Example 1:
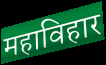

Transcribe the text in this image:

महाविहार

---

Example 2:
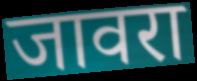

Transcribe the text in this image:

जावरा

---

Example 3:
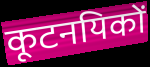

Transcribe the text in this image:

कूटनयिकों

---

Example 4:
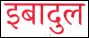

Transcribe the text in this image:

इबादुल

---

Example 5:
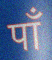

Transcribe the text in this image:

पाँ